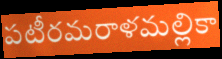
పటీరమరాళమల్లికా